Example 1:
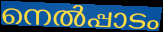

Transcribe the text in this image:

നെൽപ്പാടം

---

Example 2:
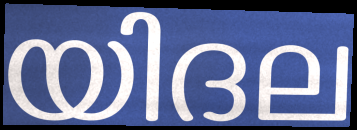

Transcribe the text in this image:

യിദല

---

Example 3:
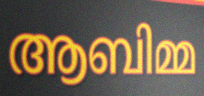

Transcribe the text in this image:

ആബിമ്മ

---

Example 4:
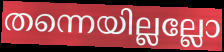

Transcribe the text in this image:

തന്നെയില്ലല്ലോ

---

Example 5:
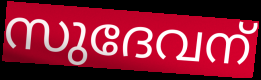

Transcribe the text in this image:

സുദേവന്